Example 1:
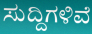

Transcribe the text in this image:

ಸುದ್ದಿಗಳಿವೆ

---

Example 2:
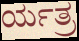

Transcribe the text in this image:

ರ್ಯತ್ರ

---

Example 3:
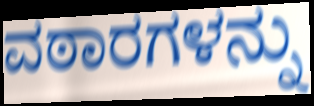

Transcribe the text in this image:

ವಠಾರಗಳನ್ನು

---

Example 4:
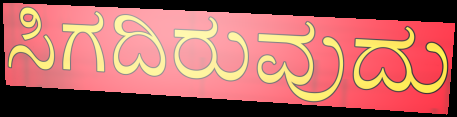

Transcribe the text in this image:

ಸಿಗದಿರುವುದು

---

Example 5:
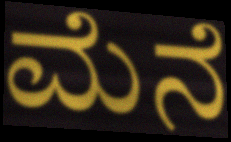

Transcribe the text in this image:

ಮೆನೆ